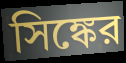
সিঙ্কের